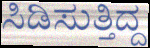
ಸಿಡಿಸುತ್ತಿದ್ದ